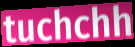
tuchchh